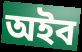
অইব